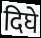
दिघे